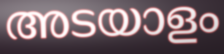
അടയാളം